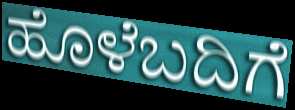
ಹೊಳೆಬದಿಗೆ